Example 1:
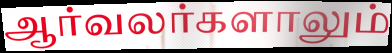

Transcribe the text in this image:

ஆர்வலர்களாலும்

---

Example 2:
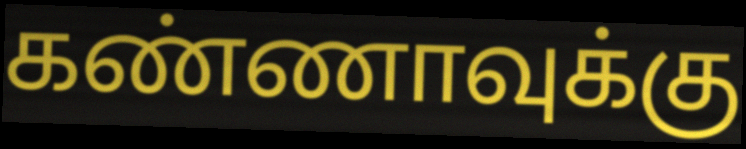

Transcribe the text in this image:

கண்ணாவுக்கு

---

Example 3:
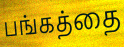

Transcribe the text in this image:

பங்கத்தை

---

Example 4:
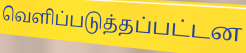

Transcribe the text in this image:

வெளிப்படுத்தப்பட்டன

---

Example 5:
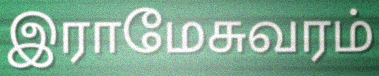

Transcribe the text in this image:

இராமேசுவரம்